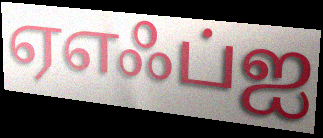
ஏஎஃப்ஐ